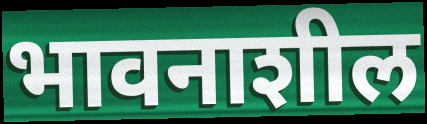
भावनाशील